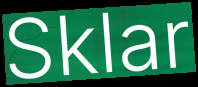
Sklar